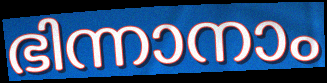
ഭിന്നാനാം